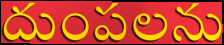
దుంపలను